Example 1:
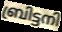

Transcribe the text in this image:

ബ്രിട്ടനി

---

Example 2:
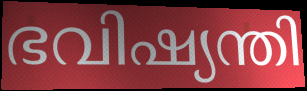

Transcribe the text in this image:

ഭവിഷ്യന്തി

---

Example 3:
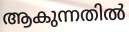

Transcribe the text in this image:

ആകുന്നതിൽ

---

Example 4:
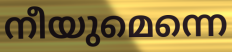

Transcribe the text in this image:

നീയുമെന്നെ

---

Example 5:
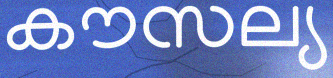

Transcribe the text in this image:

കൗസല്യ